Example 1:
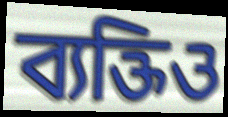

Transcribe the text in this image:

ব্যক্তিও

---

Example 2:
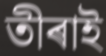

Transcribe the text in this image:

তীৰাই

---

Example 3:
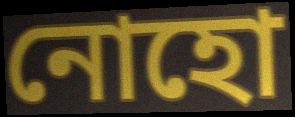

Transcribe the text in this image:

নোহো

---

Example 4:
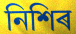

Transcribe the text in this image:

নিশিৰ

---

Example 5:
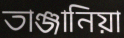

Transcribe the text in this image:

তাঞ্জানিয়া